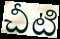
చీటి